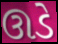
ઊડે